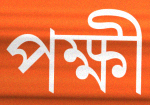
পক্ষী